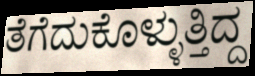
ತೆಗೆದುಕೊಳ್ಳುತ್ತಿದ್ದ